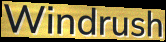
Windrush